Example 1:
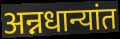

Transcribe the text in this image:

अन्नधान्यांत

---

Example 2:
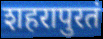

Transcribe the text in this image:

शहरापुरतं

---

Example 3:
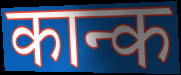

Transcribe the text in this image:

कान्क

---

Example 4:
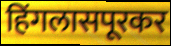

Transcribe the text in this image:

हिंगलासपूरकर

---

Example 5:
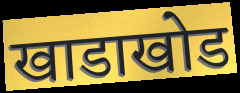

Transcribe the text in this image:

खाडाखोड